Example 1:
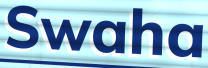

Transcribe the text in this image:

Swaha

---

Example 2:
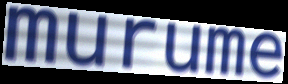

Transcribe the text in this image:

murume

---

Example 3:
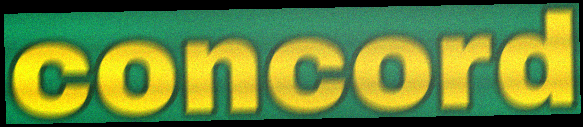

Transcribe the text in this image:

concord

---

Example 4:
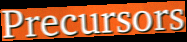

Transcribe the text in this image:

Precursors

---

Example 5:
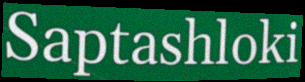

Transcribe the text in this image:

Saptashloki